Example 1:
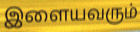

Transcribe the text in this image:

இளையவரும்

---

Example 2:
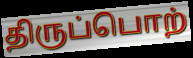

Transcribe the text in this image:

திருப்பொற்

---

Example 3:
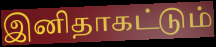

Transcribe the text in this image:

இனிதாகட்டும்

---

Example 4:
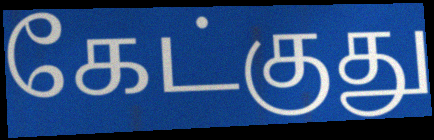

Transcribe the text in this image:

கேட்குது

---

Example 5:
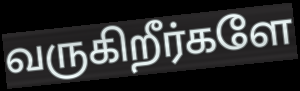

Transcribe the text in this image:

வருகிறீர்களே